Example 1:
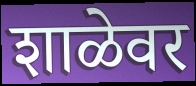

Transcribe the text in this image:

शाळेवर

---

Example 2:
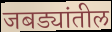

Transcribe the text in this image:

जबड्यांतील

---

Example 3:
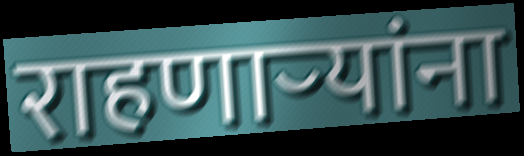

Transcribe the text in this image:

राहणाऱ्यांना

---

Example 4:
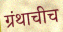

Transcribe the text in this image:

ग्रंथाचीच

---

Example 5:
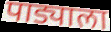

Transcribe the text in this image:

पाड्याला